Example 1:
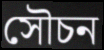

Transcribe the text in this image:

সৌচন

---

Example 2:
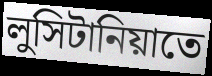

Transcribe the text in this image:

লুসিটানিয়াতে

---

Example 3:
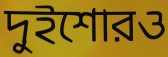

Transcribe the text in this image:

দুইশোরও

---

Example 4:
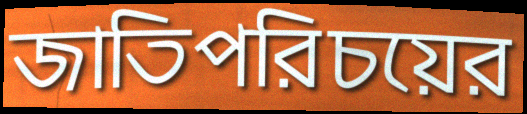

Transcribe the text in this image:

জাতিপরিচয়ের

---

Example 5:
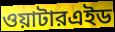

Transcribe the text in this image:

ওয়াটারএইড